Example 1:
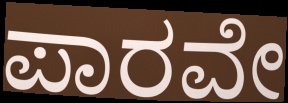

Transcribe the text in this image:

ಪಾರವೇ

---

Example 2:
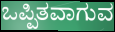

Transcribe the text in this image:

ಒಪ್ಪಿತವಾಗುವ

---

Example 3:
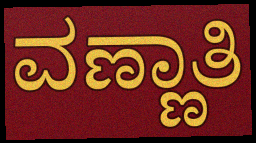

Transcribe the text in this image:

ವಣ್ಣಾತಿ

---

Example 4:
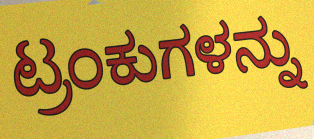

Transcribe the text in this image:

ಟ್ರಂಕುಗಳನ್ನು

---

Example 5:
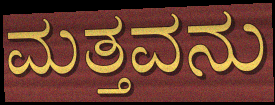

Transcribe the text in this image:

ಮತ್ತವನು